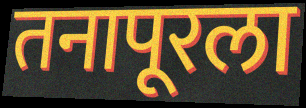
तनापूरला